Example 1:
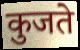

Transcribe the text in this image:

कुजते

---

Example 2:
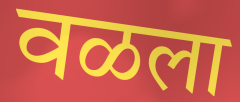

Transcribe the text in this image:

वळला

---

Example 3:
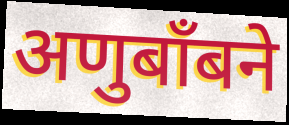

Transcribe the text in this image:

अणुबाँबने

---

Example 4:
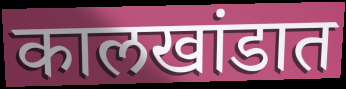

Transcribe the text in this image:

कालखांडात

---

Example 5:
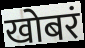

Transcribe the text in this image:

खोबरं